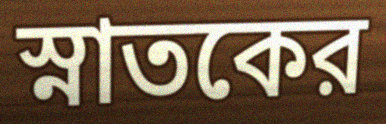
স্নাতকের